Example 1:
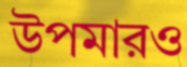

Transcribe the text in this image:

উপমারও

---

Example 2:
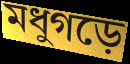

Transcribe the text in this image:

মধুগড়ে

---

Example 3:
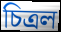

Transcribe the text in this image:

চিত্রল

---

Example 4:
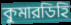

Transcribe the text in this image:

কুমারডিহি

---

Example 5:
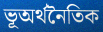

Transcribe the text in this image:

ভূঅর্থনৈতিক